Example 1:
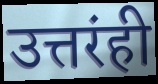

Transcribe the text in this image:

उत्तरंही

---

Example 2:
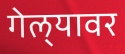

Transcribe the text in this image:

गेल्यावर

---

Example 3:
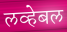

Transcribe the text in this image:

लव्हेबल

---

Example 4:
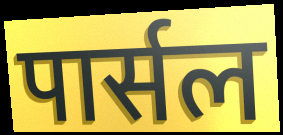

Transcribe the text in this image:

पार्सल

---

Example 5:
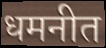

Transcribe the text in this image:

धमनीत